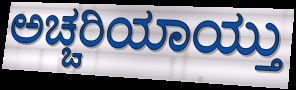
ಅಚ್ಚರಿಯಾಯ್ತು